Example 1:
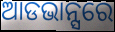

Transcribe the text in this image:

ଆଡଭାନ୍ସରେ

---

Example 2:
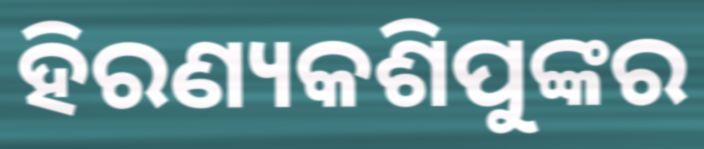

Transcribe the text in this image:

ହିରଣ୍ୟକଶିପୁଙ୍କର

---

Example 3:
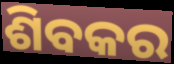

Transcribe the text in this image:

ଶିବକର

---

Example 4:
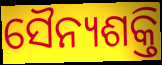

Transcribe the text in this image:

ସୈନ୍ୟଶକ୍ତି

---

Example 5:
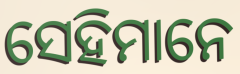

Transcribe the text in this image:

ସେହିମାନେ